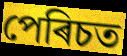
পেৰিচত